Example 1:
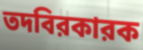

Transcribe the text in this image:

তদবিরকারক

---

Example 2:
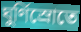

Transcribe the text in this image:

ঘুর্ণিস্রোতে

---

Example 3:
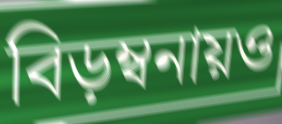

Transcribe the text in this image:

বিড়ম্বনায়ও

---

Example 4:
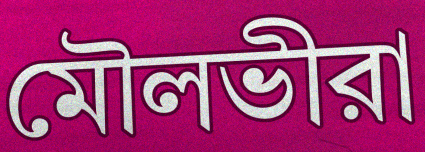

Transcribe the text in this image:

মৌলভীরা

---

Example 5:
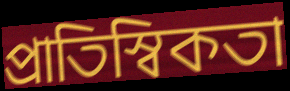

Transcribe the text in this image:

প্রাতিস্বিকতা